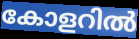
കോളറിൽ